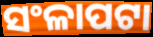
ସଂଳାପଟା